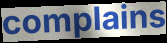
complains